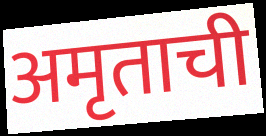
अमृताची